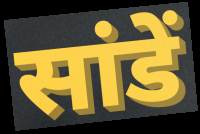
सांडें